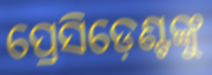
ପ୍ରେସିଡ଼େଣ୍ଟଙ୍କୁ